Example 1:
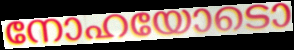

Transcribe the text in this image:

നോഹയോടൊ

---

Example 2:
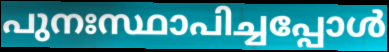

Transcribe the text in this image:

പുനഃസ്ഥാപിച്ചപ്പോൾ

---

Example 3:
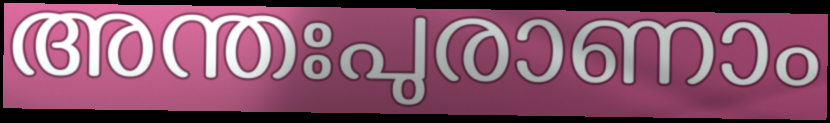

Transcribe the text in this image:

അന്തഃപുരാണാം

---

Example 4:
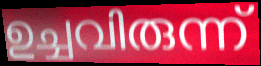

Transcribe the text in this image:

ഉച്ചവിരുന്ന്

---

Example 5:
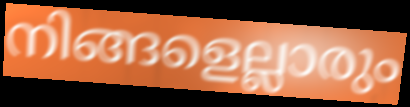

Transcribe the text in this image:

നിങ്ങളെല്ലാരും